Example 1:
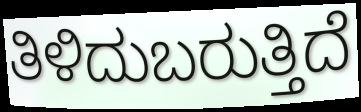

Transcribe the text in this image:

ತಿಳಿದುಬರುತ್ತಿದೆ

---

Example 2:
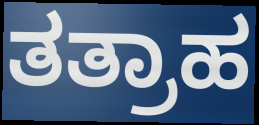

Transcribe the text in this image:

ತತ್ರಾಹ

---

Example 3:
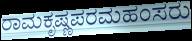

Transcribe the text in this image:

ರಾಮಕೃಷ್ಣಪರಮಹಂಸರು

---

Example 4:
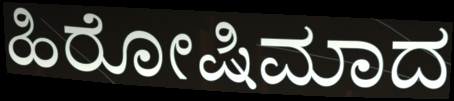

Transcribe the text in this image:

ಹಿರೋಷಿಮಾದ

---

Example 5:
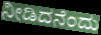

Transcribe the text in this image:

ನೀಡಿದನೆಂದು